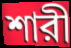
শারী